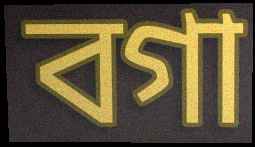
বগা